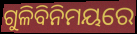
ଗୁଳିବିନିମୟରେ